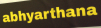
abhyarthana